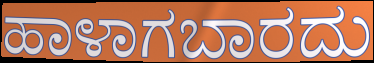
ಹಾಳಾಗಬಾರದು